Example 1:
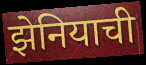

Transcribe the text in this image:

झेनियाची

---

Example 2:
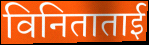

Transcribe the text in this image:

विनिताताई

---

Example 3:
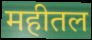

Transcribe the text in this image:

महीतल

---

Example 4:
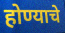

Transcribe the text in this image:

होण्याचे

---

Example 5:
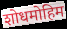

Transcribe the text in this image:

शोधमोहिम